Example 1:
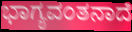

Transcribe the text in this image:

ಭಾಗ್ಯವಂತನಾದೆ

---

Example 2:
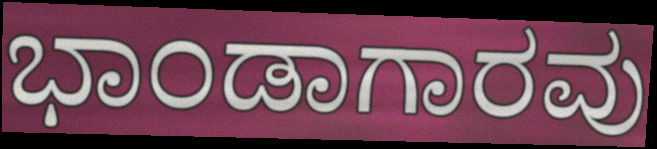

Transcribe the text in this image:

ಭಾಂಡಾಗಾರವು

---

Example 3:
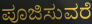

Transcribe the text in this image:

ಪೂಜಿಸುವರೆ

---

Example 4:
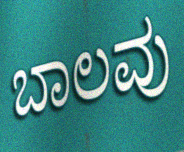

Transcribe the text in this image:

ಬಾಲವು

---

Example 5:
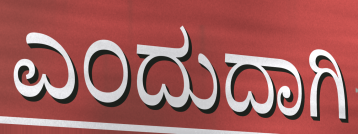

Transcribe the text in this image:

ಎಂದುದಾಗಿ